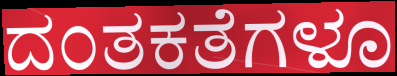
ದಂತಕತೆಗಳೂ